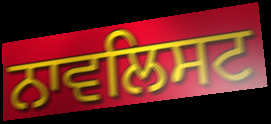
ਨਾਵਲਿਸਟ